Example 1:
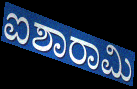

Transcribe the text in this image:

ಐಶಾರಾಮಿ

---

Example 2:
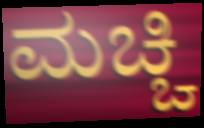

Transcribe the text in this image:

ಮಚ್ಚಿ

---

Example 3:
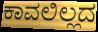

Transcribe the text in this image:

ಕಾವಲಿಲ್ಲದ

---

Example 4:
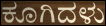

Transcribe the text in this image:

ಕೂಗಿದಳು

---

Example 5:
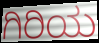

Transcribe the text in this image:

ಗಿರಿಯ